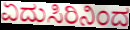
ಏದುಸಿರಿನಿಂದ